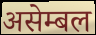
असेम्बल